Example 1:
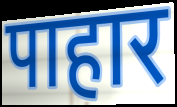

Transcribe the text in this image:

पाहार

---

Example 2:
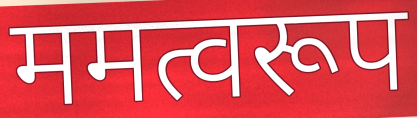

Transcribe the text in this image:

ममत्वरूप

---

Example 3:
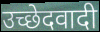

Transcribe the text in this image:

उच्छेदवादी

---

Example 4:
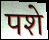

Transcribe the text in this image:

पशे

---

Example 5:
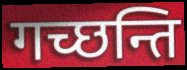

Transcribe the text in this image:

गच्छन्ति